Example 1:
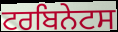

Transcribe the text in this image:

ਟਰਬਿਨੇਟਸ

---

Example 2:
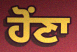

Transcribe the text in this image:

ਹੋਂਣਾ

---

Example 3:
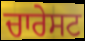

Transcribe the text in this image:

ਚਾਰੇਸਟ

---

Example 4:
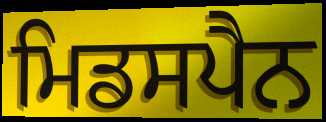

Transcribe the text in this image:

ਮਿਡਸਪੈਨ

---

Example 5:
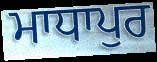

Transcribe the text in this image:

ਮਾਧਾਪੁਰ